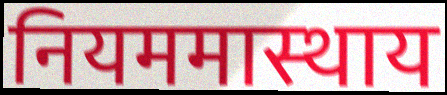
नियममास्थाय